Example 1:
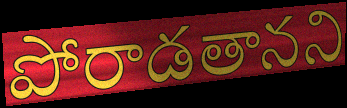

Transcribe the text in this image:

పోరాడతానని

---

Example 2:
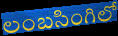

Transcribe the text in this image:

లంబసింగిలో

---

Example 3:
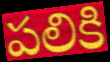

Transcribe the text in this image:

పలికి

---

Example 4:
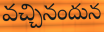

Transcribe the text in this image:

వచ్చినందున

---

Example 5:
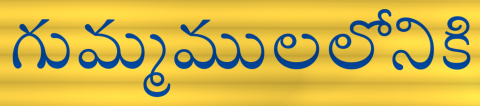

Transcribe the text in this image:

గుమ్మములలోనికి